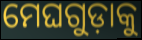
ମେଘଗୁଡ଼ାକୁ